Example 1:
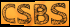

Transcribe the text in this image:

CSBS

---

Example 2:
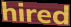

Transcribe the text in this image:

hired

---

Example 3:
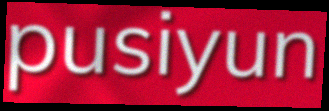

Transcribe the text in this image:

pusiyun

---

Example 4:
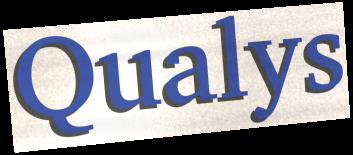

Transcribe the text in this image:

Qualys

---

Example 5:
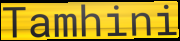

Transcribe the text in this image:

Tamhini